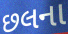
છલના